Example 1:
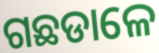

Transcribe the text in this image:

ଗଛଡାଳେ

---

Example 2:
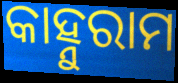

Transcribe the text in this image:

କାହ୍ନୁରାମ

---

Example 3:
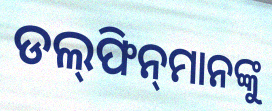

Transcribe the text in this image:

ଡଲ୍‍ଫିନ୍‍ମାନଙ୍କୁ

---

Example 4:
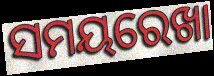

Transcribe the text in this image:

ସମୟରେଖା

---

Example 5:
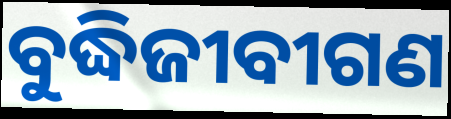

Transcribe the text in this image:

ବୁଦ୍ଧିଜୀବୀଗଣ